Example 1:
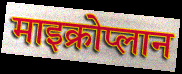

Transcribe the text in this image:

माइक्रोप्लान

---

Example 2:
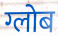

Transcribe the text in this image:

ग्‍लोब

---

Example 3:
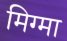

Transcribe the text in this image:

मिग्मा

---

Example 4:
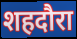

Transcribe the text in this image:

शहदौरा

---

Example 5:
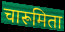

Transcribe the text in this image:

चारूमिता